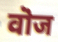
वॊज